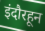
इंदौरहून